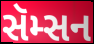
સૅમ્સન